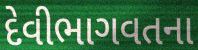
દેવીભાગવતના